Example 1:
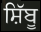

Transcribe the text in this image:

ਸ਼ਿੱਬੂ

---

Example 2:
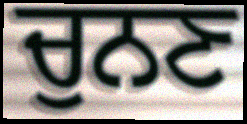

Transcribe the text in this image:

ਚੁਨਣ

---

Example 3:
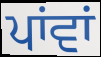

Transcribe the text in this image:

ਪਾਂਵਾਂ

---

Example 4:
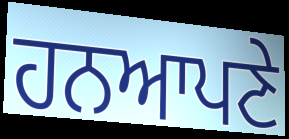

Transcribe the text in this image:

ਹਨਆਪਣੇ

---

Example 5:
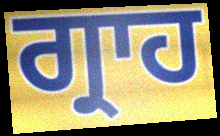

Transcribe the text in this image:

ਗ੍ਰਾਹ